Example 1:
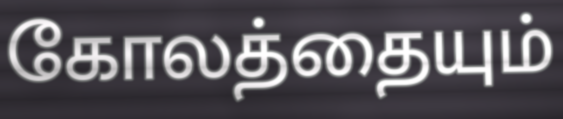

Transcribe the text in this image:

கோலத்தையும்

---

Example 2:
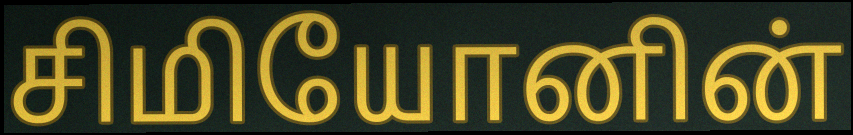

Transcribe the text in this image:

சிமியோனின்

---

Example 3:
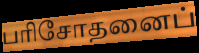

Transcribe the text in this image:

பரிசோதனைப்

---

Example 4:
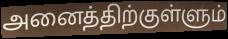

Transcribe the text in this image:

அனைத்திற்குள்ளும்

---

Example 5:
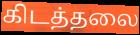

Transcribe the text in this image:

கிடத்தலை